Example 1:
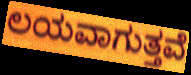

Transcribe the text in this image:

ಲಯವಾಗುತ್ತವೆ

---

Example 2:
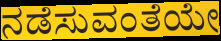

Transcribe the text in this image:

ನಡೆಸುವಂತೆಯೇ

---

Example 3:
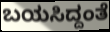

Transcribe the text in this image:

ಬಯಸಿದ್ದಂತೆ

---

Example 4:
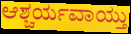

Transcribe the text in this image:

ಆಶ್ಚರ್ಯವಾಯ್ತು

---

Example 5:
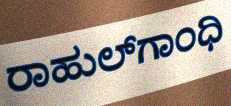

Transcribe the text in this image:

ರಾಹುಲ್‌ಗಾಂಧಿ